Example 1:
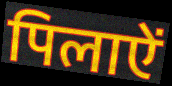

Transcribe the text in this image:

पिलाऐं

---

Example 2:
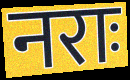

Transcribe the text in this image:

नराः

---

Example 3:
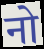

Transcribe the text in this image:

नो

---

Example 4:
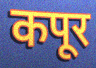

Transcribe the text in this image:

कपूर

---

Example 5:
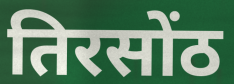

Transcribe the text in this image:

तिरसोंठ